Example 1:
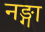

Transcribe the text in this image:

नङ्गा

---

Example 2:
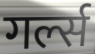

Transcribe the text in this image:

गर्ल्स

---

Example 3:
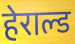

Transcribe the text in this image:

हेराल्ड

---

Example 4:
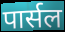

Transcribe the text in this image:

पार्सल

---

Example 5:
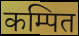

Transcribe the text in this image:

कम्पित